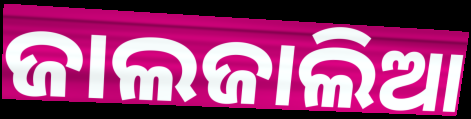
ଜାଲଜାଲିଆ